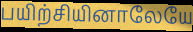
பயிற்சியினாலேயே